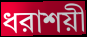
ধরাশয়ী